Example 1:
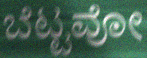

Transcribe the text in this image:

ಬೆಟ್ಟವೋ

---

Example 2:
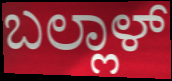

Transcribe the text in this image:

ಬಲ್ಲಾಳ್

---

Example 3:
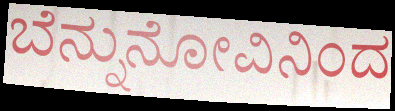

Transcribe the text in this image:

ಬೆನ್ನುನೋವಿನಿಂದ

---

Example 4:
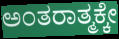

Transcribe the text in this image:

ಅಂತರಾತ್ಮಕ್ಕೇ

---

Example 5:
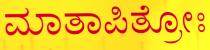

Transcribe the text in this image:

ಮಾತಾಪಿತ್ರೋಃ